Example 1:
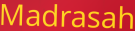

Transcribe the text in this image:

Madrasah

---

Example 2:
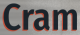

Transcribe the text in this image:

Cram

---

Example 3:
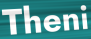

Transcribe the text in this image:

Theni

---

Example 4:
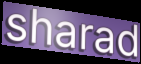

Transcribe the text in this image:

sharad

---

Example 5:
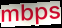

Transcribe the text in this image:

mbps